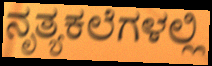
ನೃತ್ಯಕಲೆಗಳಲ್ಲಿ